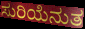
ಸುರಿಯೆನುತ